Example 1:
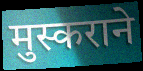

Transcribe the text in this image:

मुस्कराने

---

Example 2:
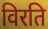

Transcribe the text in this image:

विरति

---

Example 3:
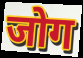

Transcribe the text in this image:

जोग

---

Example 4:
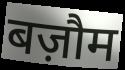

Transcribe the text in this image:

बज़ौम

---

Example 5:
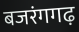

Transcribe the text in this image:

बजरंगगढ़